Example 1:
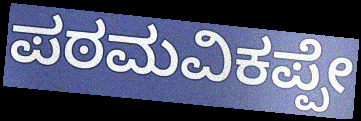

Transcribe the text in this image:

ಪಠಮವಿಕಪ್ಪೇ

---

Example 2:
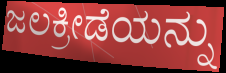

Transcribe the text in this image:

ಜಲಕ್ರೀಡೆಯನ್ನು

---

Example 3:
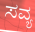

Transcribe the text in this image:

ಸವ್ಯ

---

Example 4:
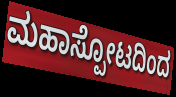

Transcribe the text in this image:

ಮಹಾಸ್ಪೋಟದಿಂದ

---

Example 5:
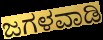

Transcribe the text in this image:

ಜಗಳವಾಡಿ